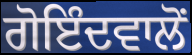
ਗੋਇੰਦਵਾਲੋਂ